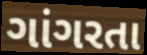
ગાંગરતા